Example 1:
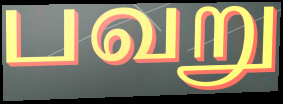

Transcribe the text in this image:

பவறு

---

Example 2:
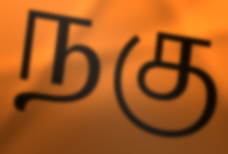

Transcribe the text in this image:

நகு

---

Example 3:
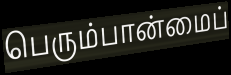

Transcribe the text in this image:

பெரும்பான்மைப்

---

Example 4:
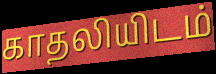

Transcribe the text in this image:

காதலியிடம்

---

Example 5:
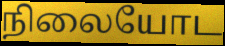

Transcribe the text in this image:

நிலையோட